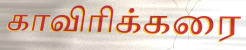
காவிரிக்கரை